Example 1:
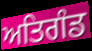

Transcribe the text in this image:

ਅਤਿਗੰਡ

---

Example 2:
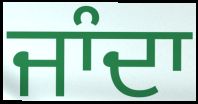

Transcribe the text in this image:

ਜਾੰਦਾ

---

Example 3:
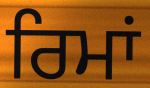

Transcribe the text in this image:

ਰਿਮਾਂ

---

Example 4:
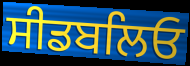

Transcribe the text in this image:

ਸੀਡਬਲਿਓ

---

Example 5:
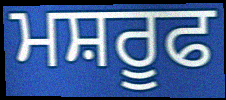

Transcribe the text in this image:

ਮਸ਼ਰੂਫ